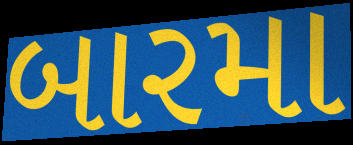
બારમા